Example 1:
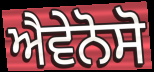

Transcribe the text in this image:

ਐਵੇਨੋਸੋ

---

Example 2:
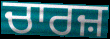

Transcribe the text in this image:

ਚਾਰਜ਼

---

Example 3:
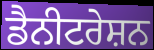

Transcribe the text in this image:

ਡੈਨੀਟਰੇਸ਼ਨ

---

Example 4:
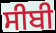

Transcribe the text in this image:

ਸੀਬੀ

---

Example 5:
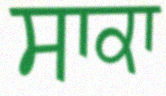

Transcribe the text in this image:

ਸਾਕਾ